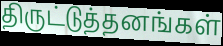
திருட்டுத்தனங்கள்